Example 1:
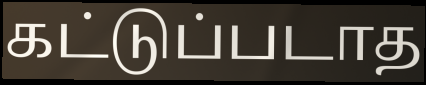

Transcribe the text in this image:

கட்டுப்படாத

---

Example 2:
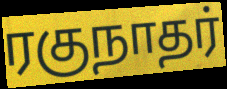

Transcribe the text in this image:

ரகுநாதர்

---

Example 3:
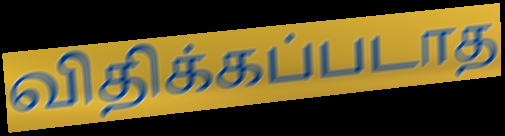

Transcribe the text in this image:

விதிக்கப்படாத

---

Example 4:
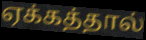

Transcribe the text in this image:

ஏக்கத்தால்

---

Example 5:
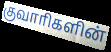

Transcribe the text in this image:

குவாரிகளின்